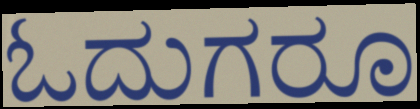
ಓದುಗರೂ